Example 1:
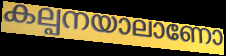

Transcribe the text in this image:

കല്പനയാലാണോ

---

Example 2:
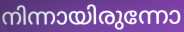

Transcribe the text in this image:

നിന്നായിരുന്നോ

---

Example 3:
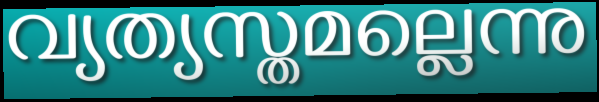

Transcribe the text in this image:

വ്യത്യസ്തമല്ലെന്നു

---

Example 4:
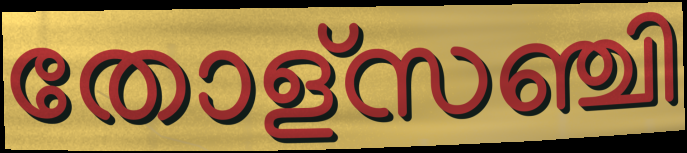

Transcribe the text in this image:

തോള്സഞ്ചി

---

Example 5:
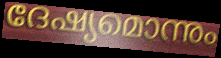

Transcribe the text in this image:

ദേഷ്യമൊന്നും